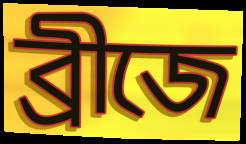
ব্রীজে